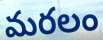
మరలం